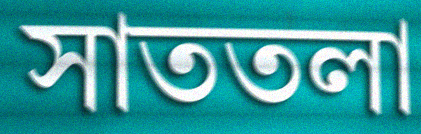
সাততলা